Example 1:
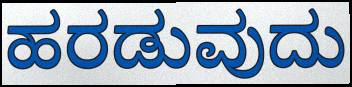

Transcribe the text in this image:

ಹರಡುವುದು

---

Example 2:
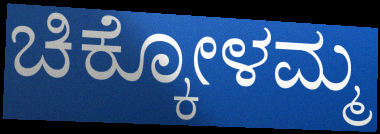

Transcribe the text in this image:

ಚಿಕ್ಕೋಳಮ್ಮ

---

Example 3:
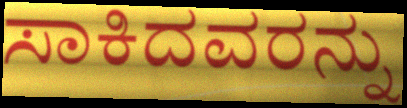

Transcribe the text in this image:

ಸಾಕಿದವರನ್ನು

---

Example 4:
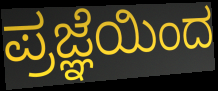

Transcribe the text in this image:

ಪ್ರಜ್ಞೆಯಿಂದ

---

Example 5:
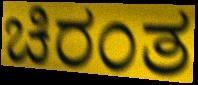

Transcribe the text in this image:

ಚಿರಂತ